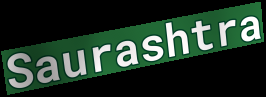
Saurashtra